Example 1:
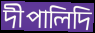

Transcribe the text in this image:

দীপালিদি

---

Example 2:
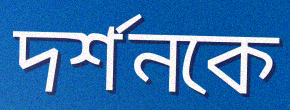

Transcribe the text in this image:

দর্শনকে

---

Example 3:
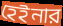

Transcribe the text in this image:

হেইনার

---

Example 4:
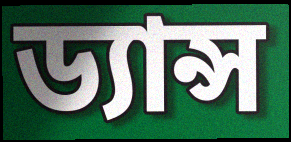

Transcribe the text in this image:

ড্যান্স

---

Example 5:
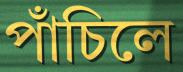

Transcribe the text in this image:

পাঁচিলে